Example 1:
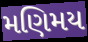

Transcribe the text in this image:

મણિમય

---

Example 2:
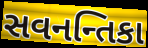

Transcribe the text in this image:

સવનન્તિકા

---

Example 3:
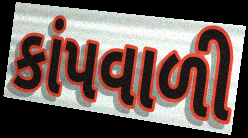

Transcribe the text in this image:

કાંપવાળી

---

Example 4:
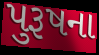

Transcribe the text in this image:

પુરૂષના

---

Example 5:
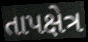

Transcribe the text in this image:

તાપક્ષેત્ર